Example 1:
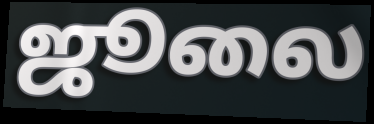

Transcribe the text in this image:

ஜூலை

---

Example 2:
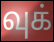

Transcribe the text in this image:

வுக்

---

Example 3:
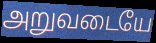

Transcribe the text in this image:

அறுவடையே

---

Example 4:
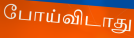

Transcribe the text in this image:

போய்விடாது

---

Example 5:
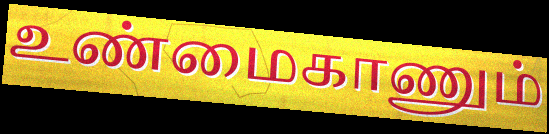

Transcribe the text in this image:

உண்மைகாணும்